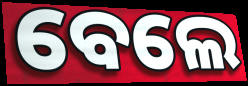
ବେଲେ